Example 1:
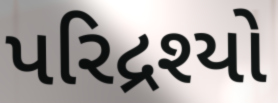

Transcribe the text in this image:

પરિદ્રશ્યો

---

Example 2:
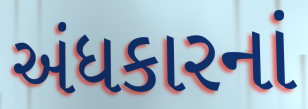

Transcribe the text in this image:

અંધકારનાં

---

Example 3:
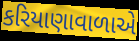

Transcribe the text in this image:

કરિયાણાવાળાએ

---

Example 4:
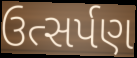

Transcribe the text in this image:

ઉત્સર્પણ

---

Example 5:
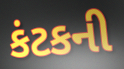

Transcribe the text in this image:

કંટકની